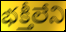
భక్తీలేని